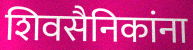
शिवसैनिकांना